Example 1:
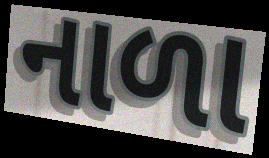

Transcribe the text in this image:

નાળા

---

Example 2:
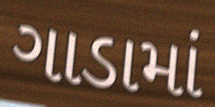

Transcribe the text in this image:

ગાડામાં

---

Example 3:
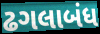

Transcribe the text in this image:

ઢગલાબંધ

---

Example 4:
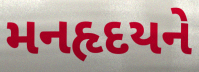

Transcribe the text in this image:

મનહૃદયને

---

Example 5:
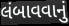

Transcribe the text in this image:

લંબાવવાનું